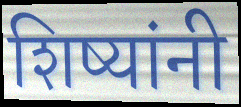
शिष्यांनी